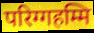
परिग्गहम्मि